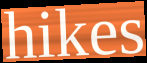
hikes